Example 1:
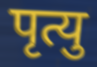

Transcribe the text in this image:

पृत्यु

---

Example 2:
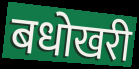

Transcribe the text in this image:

बधोखरी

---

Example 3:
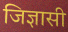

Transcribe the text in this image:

जिज्ञासी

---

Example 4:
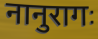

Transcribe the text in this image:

नानुरागः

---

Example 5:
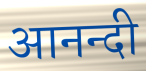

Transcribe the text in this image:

आनन्दी